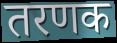
तरणक